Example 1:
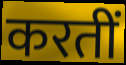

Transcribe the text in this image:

करतीं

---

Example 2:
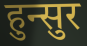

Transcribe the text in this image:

हुन्सुर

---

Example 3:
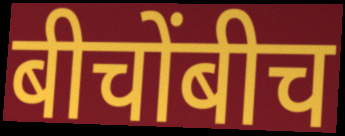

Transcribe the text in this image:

बीचोंबीच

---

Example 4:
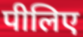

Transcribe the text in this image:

पीलिए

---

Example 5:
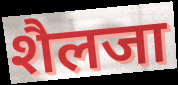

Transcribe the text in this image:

शैलजा